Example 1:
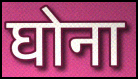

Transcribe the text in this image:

घोना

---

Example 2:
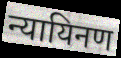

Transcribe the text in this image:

न्यायिनण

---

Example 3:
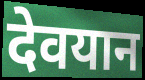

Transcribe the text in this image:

देवयान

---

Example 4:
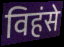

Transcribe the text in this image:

विहंसे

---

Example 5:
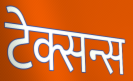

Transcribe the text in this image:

टेक्सन्स